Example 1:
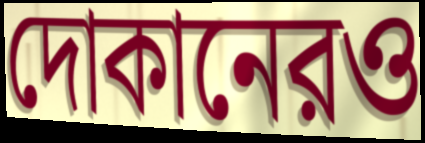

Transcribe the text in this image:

দোকানেরও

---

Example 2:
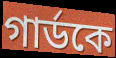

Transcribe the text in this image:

গার্ডকে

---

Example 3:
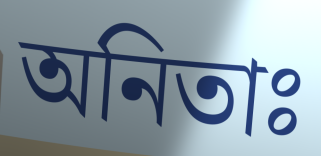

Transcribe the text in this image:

অনিতাঃ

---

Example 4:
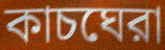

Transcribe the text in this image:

কাচঘেরা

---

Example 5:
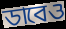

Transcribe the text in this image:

ডাবেও